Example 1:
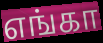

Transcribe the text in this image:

எங்கா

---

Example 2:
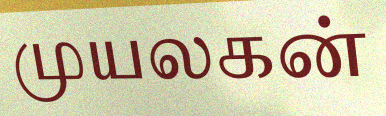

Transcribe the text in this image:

முயலகன்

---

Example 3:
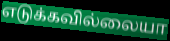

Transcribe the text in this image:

எடுக்கவில்லையா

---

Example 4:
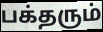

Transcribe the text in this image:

பக்தரும்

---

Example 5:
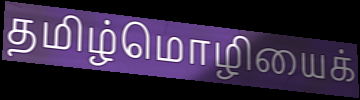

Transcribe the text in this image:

தமிழ்மொழியைக்